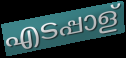
എടപ്പാള്